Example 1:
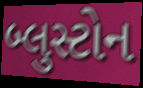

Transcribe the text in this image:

બ્લુસ્ટોન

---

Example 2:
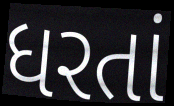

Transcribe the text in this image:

ધરતાં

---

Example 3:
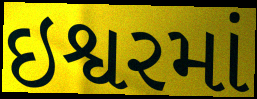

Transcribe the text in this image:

ઇશ્વરમાં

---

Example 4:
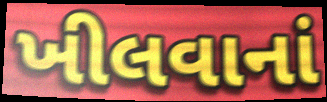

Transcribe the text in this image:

ખીલવાનાં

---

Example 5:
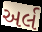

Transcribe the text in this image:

અર્લ